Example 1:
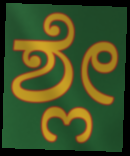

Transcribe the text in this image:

ಶ್ಲೇ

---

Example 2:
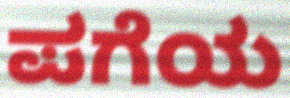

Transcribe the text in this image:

ಪಗೆಯ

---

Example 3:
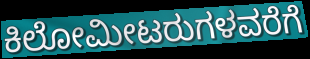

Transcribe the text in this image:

ಕಿಲೋಮೀಟರುಗಳವರೆಗೆ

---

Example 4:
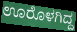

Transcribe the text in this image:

ಊರೊಳಗಿದ್ದ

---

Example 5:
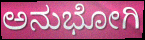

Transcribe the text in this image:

ಅನುಭೋಗಿ